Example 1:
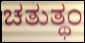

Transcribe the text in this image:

ಚತುತ್ಥಂ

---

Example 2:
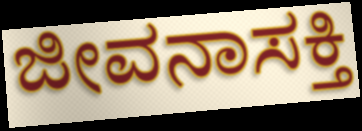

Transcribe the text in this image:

ಜೀವನಾಸಕ್ತಿ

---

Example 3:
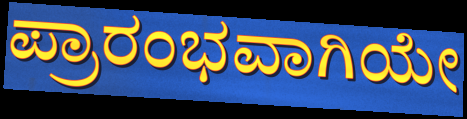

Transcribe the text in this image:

ಪ್ರಾರಂಭವಾಗಿಯೇ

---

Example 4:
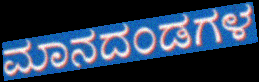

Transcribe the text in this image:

ಮಾನದಂಡಗಳ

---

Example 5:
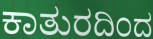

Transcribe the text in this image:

ಕಾತುರದಿಂದ